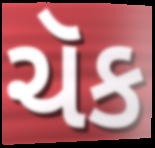
ચૅક